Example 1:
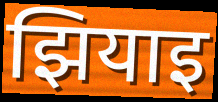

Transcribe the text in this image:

झियाइ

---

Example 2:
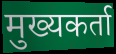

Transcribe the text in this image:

मुख्यकर्ता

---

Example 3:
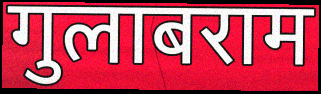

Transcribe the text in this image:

गुलाबराम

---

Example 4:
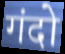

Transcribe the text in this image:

गंदो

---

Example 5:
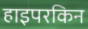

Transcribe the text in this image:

हाइपरकिन